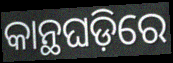
କାନ୍ଥଘଡ଼ିରେ